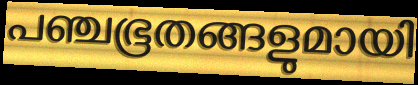
പഞ്ചഭൂതങ്ങളുമായി